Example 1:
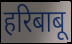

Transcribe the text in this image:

हरिबाबू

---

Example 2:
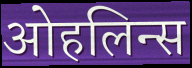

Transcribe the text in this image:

ओहलिन्स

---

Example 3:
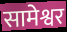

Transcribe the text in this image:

सामेश्वर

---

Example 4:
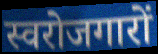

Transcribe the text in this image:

स्वरोजगारों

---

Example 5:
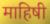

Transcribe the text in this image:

माहिषी